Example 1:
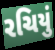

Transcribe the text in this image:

રચિયું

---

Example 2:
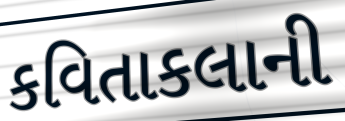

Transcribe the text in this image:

કવિતાકલાની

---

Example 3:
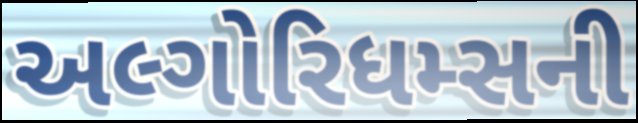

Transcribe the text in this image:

અલ્ગોરિધમ્સની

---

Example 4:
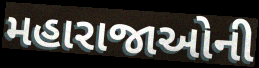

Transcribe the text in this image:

મહારાજાઓની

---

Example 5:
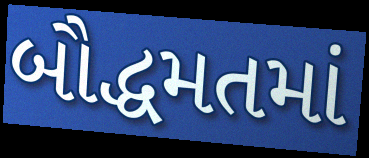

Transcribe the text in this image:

બૌદ્ધમતમાં